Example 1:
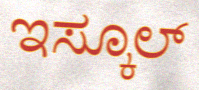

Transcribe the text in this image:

ಇಸ್ಕೂಲ್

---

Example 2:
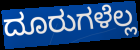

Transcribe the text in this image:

ದೂರುಗಳೆಲ್ಲ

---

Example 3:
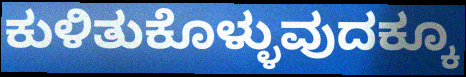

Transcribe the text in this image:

ಕುಳಿತುಕೊಳ್ಳುವುದಕ್ಕೂ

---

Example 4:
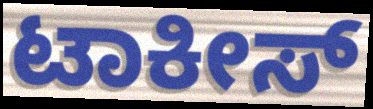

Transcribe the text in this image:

ಟಾಕೀಸ್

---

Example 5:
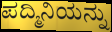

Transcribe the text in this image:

ಪದ್ಮಿನಿಯನ್ನು